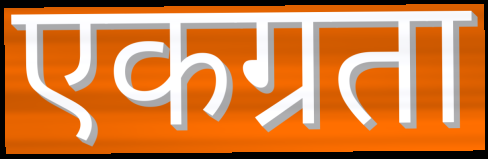
एकग्रता